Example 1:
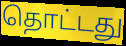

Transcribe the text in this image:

தொட்டது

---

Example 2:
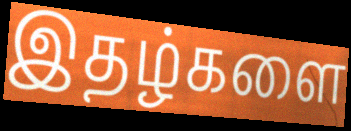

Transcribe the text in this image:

இதழ்களை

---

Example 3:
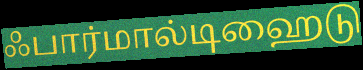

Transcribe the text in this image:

ஃபார்மால்டிஹைடு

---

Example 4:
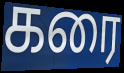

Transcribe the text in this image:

கரை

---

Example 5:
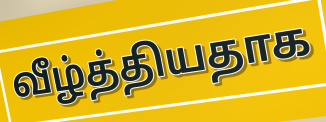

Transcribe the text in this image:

வீழ்த்தியதாக